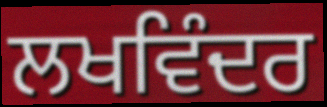
ਲਖਵਿੰਦਰ